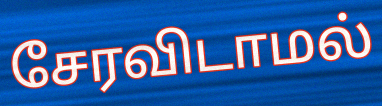
சேரவிடாமல்